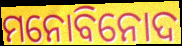
ମନୋବିନୋଦ